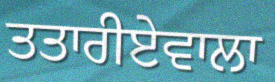
ਤਤਾਰੀਏਵਾਲਾ